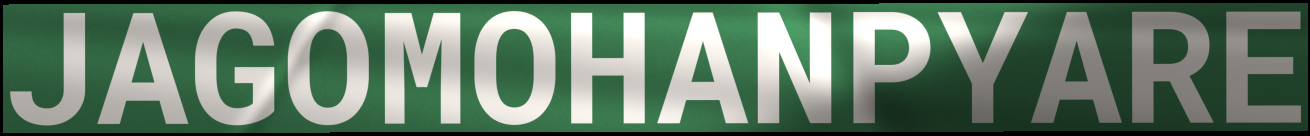
JAGOMOHANPYARE